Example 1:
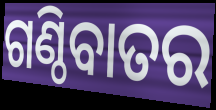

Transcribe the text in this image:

ଗଣ୍ଠିବାତର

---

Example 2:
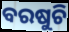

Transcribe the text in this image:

ବରଷୁଚି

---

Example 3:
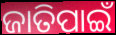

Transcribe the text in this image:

ଜାତିପାଇଁ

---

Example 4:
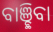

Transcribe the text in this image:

ବାଞ୍ଛିବା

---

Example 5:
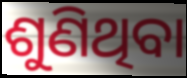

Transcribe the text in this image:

ଶୁଣିଥିବା